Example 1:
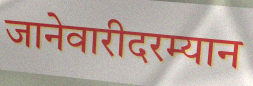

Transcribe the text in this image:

जानेवारीदरम्यान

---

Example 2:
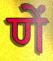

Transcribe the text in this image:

णें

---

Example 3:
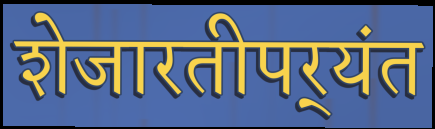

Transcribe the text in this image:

शेजारतीपर्यंत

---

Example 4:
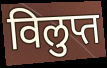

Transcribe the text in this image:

विलुप्त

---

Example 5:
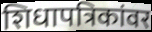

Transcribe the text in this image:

शिधापत्रिकांवर